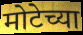
मोटेच्या